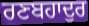
ਰਣਬਹਾਦੁਰ